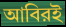
আবিরই